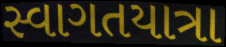
સ્વાગતયાત્રા